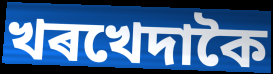
খৰখেদাকৈ